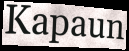
Kapaun